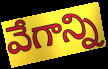
వేగాన్ని